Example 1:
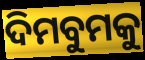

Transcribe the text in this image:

ଦିମବୁମକୁ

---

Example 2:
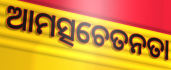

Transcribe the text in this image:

ଆମତ୍ସଚେତନତା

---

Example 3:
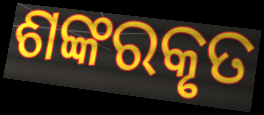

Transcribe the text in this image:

ଶଙ୍କରକୃତ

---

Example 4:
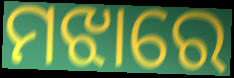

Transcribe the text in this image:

ମଝାରେ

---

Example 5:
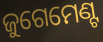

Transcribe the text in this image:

ଜୁଗେମେଣ୍ଟ